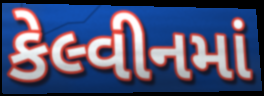
કેલ્વીનમાં